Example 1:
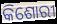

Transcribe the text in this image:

କିଶୋରୀ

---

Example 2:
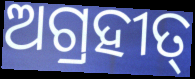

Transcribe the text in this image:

ଅଗ୍ରହୀତ୍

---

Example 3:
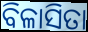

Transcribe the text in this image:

ବିଳାସିତା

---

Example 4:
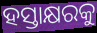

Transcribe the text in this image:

ହସ୍ତାକ୍ଷରକୁ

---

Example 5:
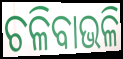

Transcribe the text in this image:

ଚଳିବାଭଳି